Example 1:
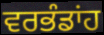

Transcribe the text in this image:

ਵਰਭੰਡਾਂਹ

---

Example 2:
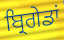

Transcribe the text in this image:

ਬ੍ਰਿਗੇਡਾਂ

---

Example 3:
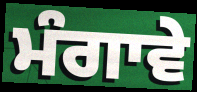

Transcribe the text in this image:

ਮੰਗਾਵੇ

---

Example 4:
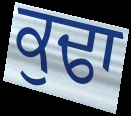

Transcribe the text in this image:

ਕੁਢਾ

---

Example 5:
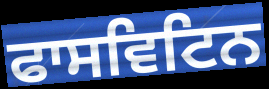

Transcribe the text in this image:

ਫਾਸਵਿਟਿਨ